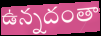
ఉన్నదంతా